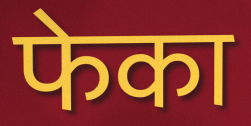
फेका